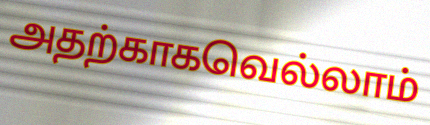
அதற்காகவெல்லாம்